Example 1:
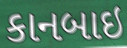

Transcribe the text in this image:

કાનબાઇ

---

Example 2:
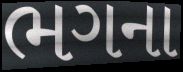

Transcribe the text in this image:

ભગના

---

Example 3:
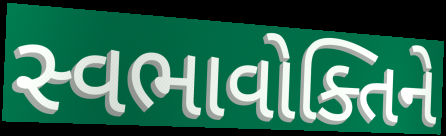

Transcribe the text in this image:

સ્વભાવોક્તિને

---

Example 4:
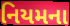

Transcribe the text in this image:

નિયમના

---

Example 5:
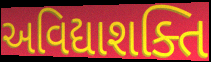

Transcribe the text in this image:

અવિદ્યાશક્તિ